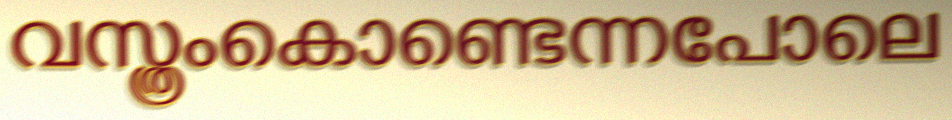
വസ്ത്രംകൊണ്ടെന്നപോലെ